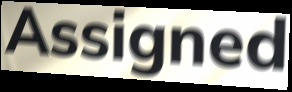
Assigned